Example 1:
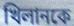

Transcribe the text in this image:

খিলানকে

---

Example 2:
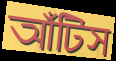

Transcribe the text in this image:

আঁটিস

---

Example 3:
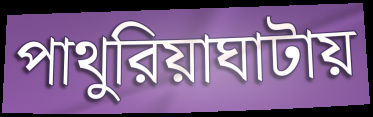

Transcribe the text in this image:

পাথুরিয়াঘাটায়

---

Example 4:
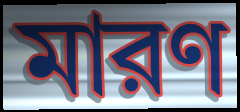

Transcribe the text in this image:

মারণ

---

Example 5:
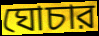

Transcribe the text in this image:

ঘোচার